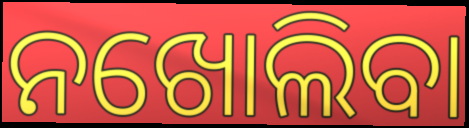
ନଖୋଲିବା